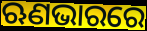
ଋଣଭାରରେ